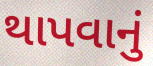
થાપવાનું